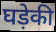
घड़ेकी